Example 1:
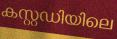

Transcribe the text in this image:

കസ്റ്റഡിയിലെ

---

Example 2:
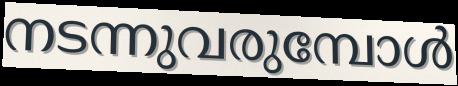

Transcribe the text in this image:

നടന്നുവരുമ്പോൾ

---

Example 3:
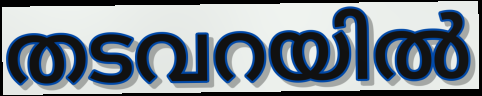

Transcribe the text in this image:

തടവറയിൽ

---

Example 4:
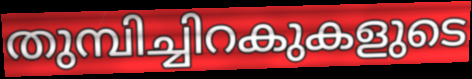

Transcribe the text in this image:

തുമ്പിച്ചിറകുകളുടെ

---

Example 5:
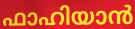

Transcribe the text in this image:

ഫാഹിയാൻ